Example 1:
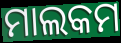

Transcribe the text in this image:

ମାଲକମ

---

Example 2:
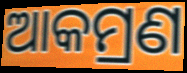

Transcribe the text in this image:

ଆକମ୍ରଣ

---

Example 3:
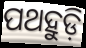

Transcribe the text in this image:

ପଥହୁଡ଼ି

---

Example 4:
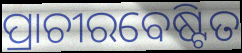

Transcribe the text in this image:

ପ୍ରାଚୀରବେଷ୍ଟିତ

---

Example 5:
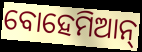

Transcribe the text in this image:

ବୋହେମିଆନ୍